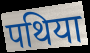
पथिया